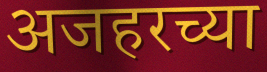
अजहरच्या